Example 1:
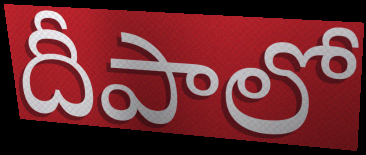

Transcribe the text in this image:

దీపాలో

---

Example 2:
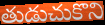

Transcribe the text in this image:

తుడుచుకొని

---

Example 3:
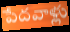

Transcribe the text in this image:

పేదవాళ్లు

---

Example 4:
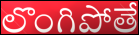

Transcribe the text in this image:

లొంగిపోతే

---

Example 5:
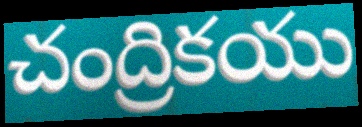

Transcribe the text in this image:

చంద్రికయు